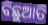
ବିଛୁଆତି